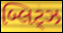
બ્લિટ્ઝ